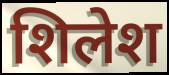
शिलेश